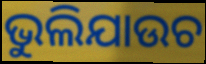
ଭୁଲିଯାଉଚ